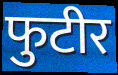
फुटीर